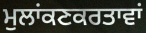
ਮੁਲਾਂਕਣਕਰਤਾਵਾਂ